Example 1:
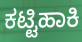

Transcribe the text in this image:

ಕಟ್ಟಿಹಾಕಿ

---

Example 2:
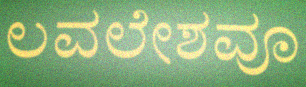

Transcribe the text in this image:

ಲವಲೇಶವೂ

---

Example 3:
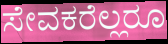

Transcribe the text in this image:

ಸೇವಕರೆಲ್ಲರೂ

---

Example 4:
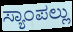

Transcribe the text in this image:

ಸ್ಯಾಂಪಲ್ಲು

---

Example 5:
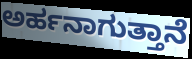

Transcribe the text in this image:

ಅರ್ಹನಾಗುತ್ತಾನೆ